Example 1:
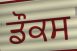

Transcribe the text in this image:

ਡੌਕਸ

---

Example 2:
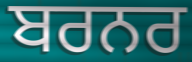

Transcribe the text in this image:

ਬਰਨਰ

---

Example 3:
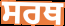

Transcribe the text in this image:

ਸਰਥ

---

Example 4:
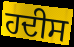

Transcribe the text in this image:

ਹਦੀਸ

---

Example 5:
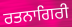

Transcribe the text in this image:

ਰਤਨਾਗਿਰੀ